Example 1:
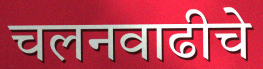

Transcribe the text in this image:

चलनवाढीचे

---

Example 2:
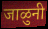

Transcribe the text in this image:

जाळुनी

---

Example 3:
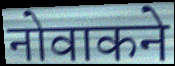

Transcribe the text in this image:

नोवाकने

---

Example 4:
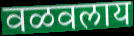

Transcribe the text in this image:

वळवलाय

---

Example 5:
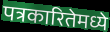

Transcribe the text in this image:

पत्रकारितेमध्ये